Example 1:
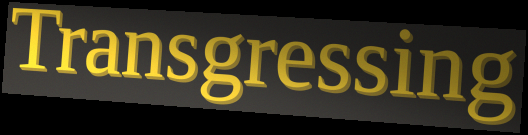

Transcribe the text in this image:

Transgressing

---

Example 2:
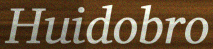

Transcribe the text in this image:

Huidobro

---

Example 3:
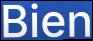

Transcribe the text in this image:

Bien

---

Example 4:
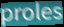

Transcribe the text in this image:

proles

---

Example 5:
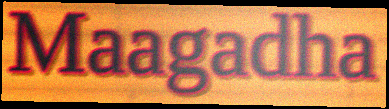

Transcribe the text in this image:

Maagadha